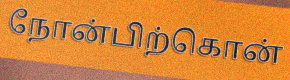
நோன்பிற்கொன்